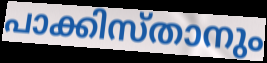
പാക്കിസ്താനും